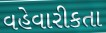
વહેવારીકતા